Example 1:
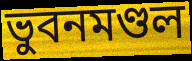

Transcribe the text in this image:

ভুবনমণ্ডল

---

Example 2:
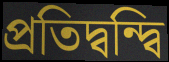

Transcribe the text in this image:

প্রতিদ্বন্দ্বি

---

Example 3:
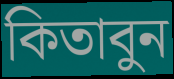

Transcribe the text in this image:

কিতাবুন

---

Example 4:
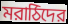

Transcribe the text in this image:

মরাঠিদের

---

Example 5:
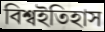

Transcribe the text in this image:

বিশ্বইতিহাস